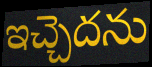
ఇచ్చెదను